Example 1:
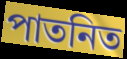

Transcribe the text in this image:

পাতনিত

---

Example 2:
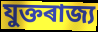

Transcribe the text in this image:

যুক্তৰাজ্য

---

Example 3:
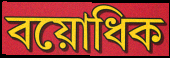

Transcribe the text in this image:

বয়োধিক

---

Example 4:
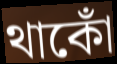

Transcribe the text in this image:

থাকোঁ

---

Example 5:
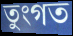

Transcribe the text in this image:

তুংগত